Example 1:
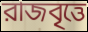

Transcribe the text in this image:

রাজবৃত্তে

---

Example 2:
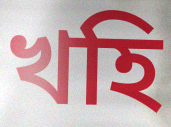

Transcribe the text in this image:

খহি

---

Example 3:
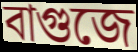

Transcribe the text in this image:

বাগুজে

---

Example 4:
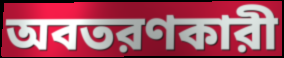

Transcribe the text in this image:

অবতরণকারী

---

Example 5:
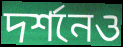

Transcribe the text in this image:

দর্শনেও